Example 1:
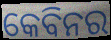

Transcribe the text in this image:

କେବିନର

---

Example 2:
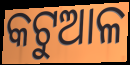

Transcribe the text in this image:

କଟୁଆଳ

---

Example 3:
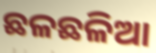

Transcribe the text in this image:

ଛଳଛଳିଆ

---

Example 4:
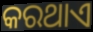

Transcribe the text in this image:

କରଥାଏ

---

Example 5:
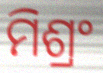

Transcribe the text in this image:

ମିଶ୍ରଂ